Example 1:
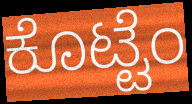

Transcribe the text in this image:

ಕೊಟ್ಟೆಂ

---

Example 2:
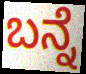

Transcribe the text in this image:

ಬನ್ನೆ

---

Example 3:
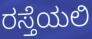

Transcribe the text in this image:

ರಸ್ತೆಯಲಿ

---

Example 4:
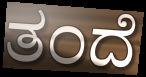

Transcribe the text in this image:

ತಂದೆ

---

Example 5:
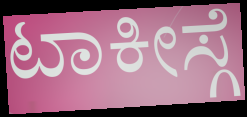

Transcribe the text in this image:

ಟಾಕೀಸ್ಗೆ